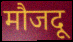
मौजदू